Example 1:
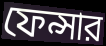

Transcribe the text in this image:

ফেন্সার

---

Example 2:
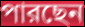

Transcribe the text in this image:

পারছেন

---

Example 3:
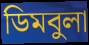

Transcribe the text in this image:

ডিমবুলা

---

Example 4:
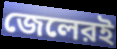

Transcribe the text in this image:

জেলেরই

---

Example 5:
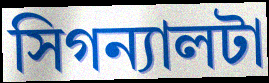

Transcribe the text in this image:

সিগন্যালটা